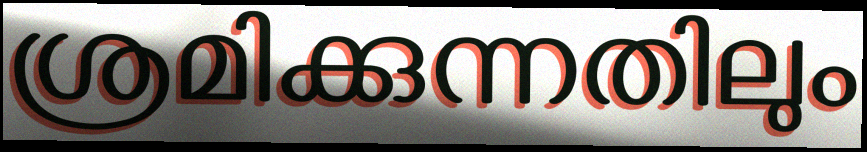
ശ്രമിക്കുന്നതിലും